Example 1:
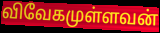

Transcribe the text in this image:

விவேகமுள்ளவன்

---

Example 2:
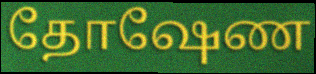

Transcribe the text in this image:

தோஷேண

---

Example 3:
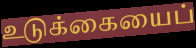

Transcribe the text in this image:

உடுக்கையைப்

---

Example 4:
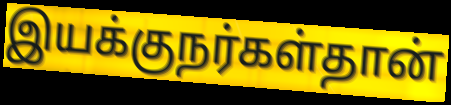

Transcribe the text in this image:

இயக்குநர்கள்தான்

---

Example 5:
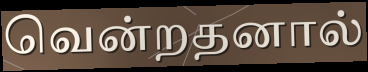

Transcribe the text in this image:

வென்றதனால்